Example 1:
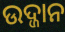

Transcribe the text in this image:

ଉଦ୍ଜାନ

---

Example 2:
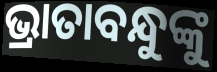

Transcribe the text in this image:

ଭ୍ରାତାବନ୍ଧୁଙ୍କୁ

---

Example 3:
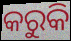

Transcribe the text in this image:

କରୁକି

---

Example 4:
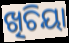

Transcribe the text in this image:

ଖିଚିୟା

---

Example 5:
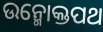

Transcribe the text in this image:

ଉନ୍ମୋକ୍ତପଥ